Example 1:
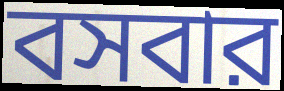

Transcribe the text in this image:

বসবার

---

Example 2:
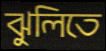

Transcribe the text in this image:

ঝুলিতে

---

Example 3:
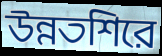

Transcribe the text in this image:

উন্নতশিরে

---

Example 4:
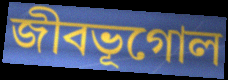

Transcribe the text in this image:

জীবভূগোল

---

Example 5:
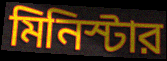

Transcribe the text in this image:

মিনিস্টার